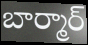
బార్మార్